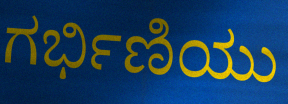
ಗರ್ಭಿಣಿಯು